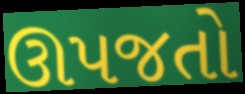
ઊપજતો